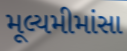
મૂલ્યમીમાંસા